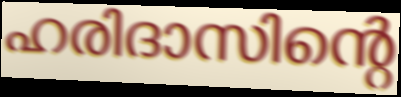
ഹരിദാസിന്റെ